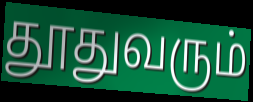
தூதுவரும்